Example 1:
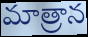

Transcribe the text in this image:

మాత్రాన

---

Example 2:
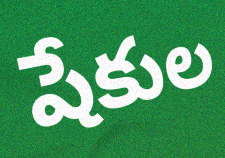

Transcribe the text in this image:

షేకుల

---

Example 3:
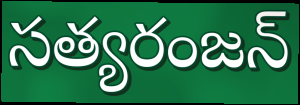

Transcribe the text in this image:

సత్యరంజన్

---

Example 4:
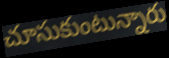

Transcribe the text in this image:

చూసుకుంటున్నారు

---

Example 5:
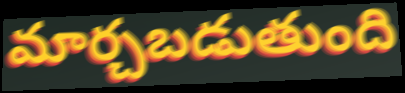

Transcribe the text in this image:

మార్చబడుతుంది